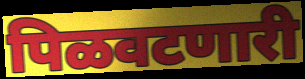
पिळवटणारी